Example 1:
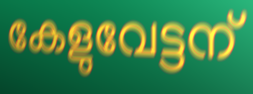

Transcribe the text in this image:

കേളുവേട്ടന്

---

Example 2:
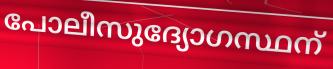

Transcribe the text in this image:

പോലീസുദ്യോഗസ്ഥന്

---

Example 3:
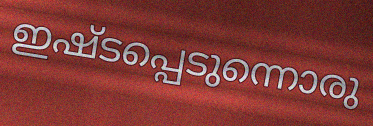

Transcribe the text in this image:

ഇഷ്ടപ്പെടുന്നൊരു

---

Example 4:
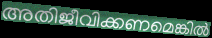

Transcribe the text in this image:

അതിജീവിക്കണമെങ്കിൽ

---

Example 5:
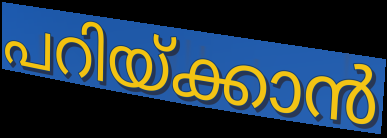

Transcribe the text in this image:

പറിയ്ക്കാൻ